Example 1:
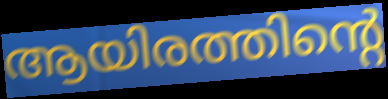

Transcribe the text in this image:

ആയിരത്തിന്റെ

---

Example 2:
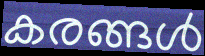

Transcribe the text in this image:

കരങ്ങൾ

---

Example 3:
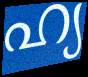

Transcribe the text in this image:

ഹ്യ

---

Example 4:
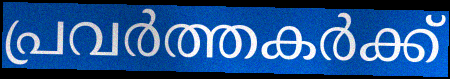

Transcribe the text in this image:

പ്രവർത്തകർക്ക്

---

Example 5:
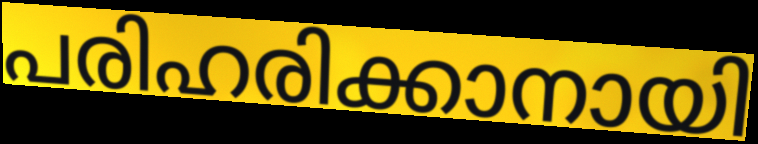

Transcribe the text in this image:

പരിഹരിക്കാനായി